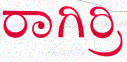
ರಾಗಿರ್ರಿ